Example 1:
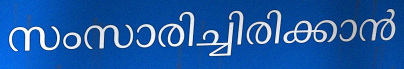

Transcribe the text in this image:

സംസാരിച്ചിരിക്കാൻ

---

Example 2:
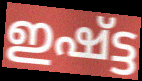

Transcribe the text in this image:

ഇഷ്ട്ട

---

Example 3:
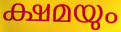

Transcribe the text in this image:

ക്ഷമയും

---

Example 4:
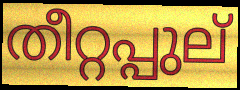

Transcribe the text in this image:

തീറ്റപ്പുല്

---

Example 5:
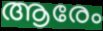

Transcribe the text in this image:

ആരേം